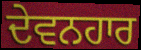
ਦੇਵਨਹਾਰ